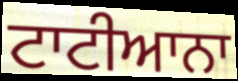
ਟਾਟੀਆਨਾ